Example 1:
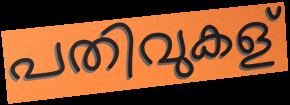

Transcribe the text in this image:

പതിവുകള്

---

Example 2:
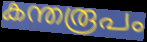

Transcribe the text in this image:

കന്തരൂപം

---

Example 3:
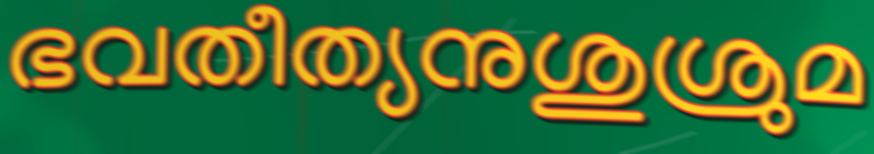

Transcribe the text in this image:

ഭവതീത്യനുശുശ്രുമ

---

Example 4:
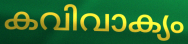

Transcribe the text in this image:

കവിവാക്യം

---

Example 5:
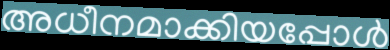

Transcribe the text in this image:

അധീനമാക്കിയപ്പോൾ